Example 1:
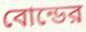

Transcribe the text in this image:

বোন্ডের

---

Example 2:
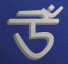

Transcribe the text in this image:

উঁ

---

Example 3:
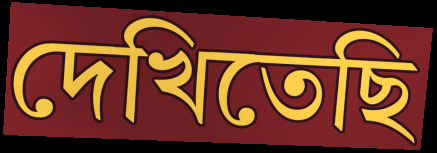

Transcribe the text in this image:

দেখিতেছি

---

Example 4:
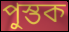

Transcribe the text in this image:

পুস্তক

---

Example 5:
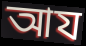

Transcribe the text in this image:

আয